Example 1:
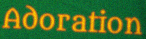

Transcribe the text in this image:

Adoration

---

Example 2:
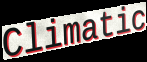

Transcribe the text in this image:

Climatic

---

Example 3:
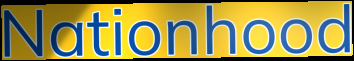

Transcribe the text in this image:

Nationhood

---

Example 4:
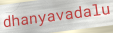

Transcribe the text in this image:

dhanyavadalu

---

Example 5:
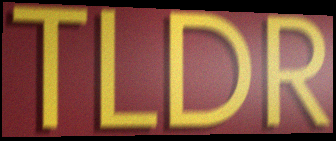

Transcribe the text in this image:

TLDR